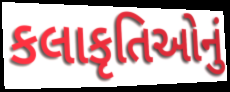
કલાકૃતિઓનું